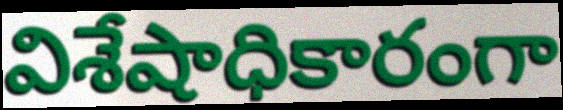
విశేషాధికారంగా